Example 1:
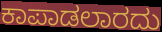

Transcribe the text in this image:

ಕಾಪಾಡಲಾರದು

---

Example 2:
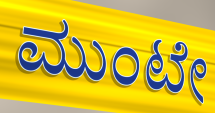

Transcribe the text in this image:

ಮುಂಟೇ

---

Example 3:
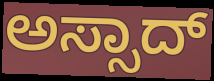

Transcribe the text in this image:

ಅಸ್ಸಾದ್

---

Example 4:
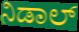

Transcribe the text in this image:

ನಿಡಾಲ್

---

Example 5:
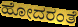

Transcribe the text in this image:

ಹೋದರಂತೆ